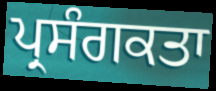
ਪ੍ਰਸੰਗਕਤਾ